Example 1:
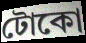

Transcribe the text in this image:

টোকো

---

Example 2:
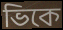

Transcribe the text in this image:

ভিকে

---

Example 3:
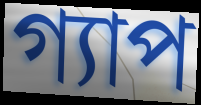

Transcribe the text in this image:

গ্যাপ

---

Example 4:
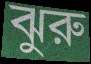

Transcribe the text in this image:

ঝুরু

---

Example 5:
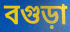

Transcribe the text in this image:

বগুড়া